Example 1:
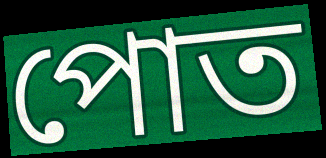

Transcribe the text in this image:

পোত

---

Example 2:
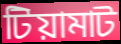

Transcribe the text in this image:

টিয়ামাট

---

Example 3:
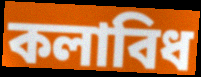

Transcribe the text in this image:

কলাবিধ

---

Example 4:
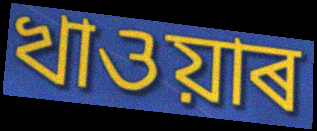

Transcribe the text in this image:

খাওয়াৰ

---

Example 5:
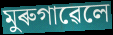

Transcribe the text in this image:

মুৰুগাৱেলে